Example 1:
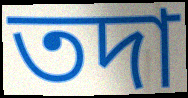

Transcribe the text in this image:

তদা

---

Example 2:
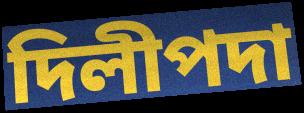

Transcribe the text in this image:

দিলীপদা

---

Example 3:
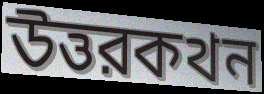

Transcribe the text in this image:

উত্তরকথন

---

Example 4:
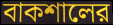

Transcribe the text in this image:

বাকশালের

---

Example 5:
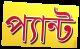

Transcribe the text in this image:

প্যান্ট